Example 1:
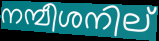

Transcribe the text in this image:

നമ്പീശനില്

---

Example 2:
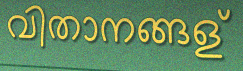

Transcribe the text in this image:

വിതാനങ്ങള്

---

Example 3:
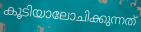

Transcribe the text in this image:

കൂടിയാലോചിക്കുന്നത്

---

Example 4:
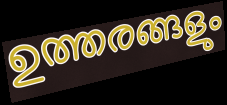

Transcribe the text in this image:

ഉത്തരങ്ങളും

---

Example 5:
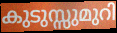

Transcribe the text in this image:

കുടുസ്സുമുറി